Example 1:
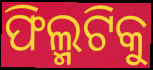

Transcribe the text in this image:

ଫିଲ୍ମଟିକୁ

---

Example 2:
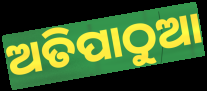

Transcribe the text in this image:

ଅତିପାଠୁଆ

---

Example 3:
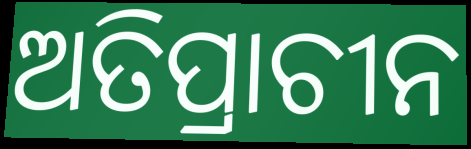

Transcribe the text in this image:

ଅତିପ୍ରାଚୀନ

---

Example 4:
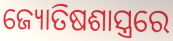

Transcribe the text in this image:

ଜ୍ୟୋତିଷଶାସ୍ତ୍ରରେ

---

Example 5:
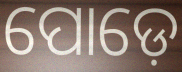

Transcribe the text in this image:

ପୋଡ଼େ